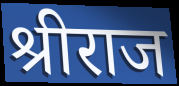
श्रीराज